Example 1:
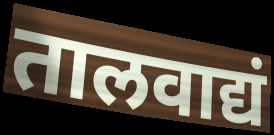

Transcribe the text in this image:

तालवाद्यं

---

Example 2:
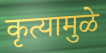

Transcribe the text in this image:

कृत्यामुळे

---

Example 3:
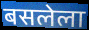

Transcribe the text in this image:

बसलेला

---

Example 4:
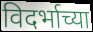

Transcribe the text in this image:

विदर्भाच्या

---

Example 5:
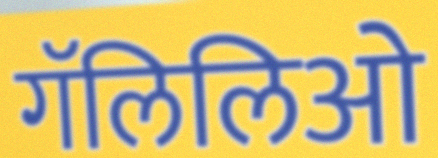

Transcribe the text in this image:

गॅलिलिओ